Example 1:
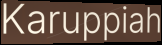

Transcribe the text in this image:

Karuppiah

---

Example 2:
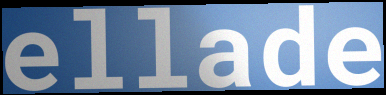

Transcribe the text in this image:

ellade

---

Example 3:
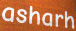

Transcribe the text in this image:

asharh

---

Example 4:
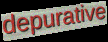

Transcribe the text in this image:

depurative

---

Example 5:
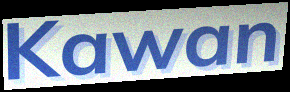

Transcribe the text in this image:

Kawan